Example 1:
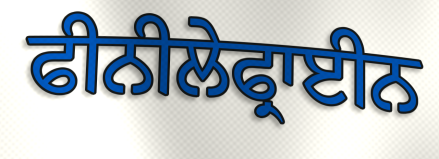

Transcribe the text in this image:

ਫੀਨੀਲੇਫ੍ਰਾਈਨ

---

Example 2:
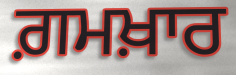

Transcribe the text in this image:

ਗ਼ਮਖ਼ਾਰ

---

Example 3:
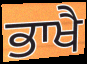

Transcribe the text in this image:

ਭਾਖੈ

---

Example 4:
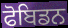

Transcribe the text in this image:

ਫੋਬਿਡਨ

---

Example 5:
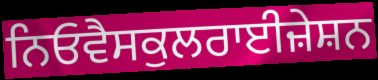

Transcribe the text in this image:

ਨਿਓਵੈਸਕੁਲਰਾਈਜ਼ੇਸ਼ਨ